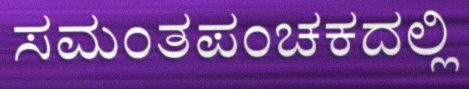
ಸಮಂತಪಂಚಕದಲ್ಲಿ